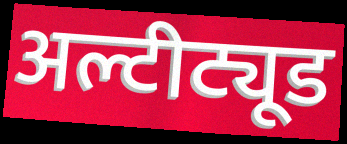
अल्टीट्यूड